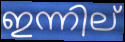
ഇന്നില്